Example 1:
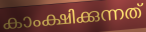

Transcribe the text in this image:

കാംക്ഷിക്കുന്നത്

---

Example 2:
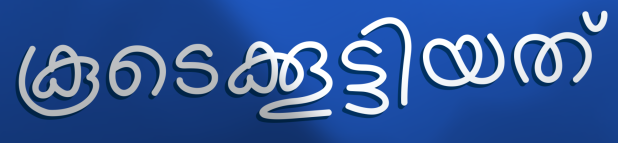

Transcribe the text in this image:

കൂടെക്കൂട്ടിയത്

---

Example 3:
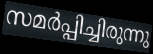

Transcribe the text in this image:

സമർപ്പിച്ചിരുന്നു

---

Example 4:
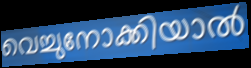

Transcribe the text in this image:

വെച്ചുനോക്കിയാൽ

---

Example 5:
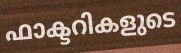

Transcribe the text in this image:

ഫാക്ടറികളുടെ